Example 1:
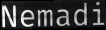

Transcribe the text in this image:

Nemadi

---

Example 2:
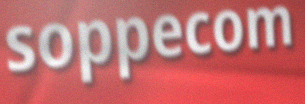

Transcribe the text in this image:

soppecom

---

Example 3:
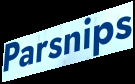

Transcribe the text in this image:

Parsnips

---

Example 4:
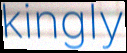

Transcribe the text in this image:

kingly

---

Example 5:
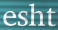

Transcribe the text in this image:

esht